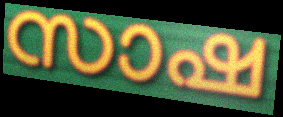
സാഷ